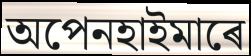
অপেনহাইমাৰে